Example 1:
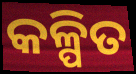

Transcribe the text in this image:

କଳ୍ପିତ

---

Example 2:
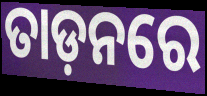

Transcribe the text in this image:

ତାଡ଼ନରେ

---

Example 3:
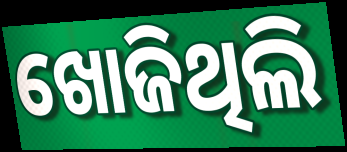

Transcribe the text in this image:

ଖୋଜିଥିଲି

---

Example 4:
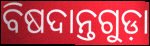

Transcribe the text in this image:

ବିଷଦାନ୍ତଗୁଡ଼ା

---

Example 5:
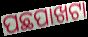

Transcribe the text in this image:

ପଛପାଖଟା